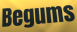
Begums